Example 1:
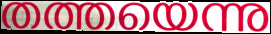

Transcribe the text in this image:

തത്തയെന്നു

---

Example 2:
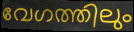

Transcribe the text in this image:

വേഗത്തിലും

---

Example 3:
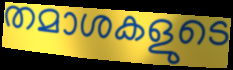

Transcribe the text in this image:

തമാശകളുടെ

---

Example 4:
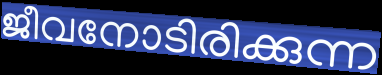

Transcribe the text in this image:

ജീവനോടിരിക്കുന്ന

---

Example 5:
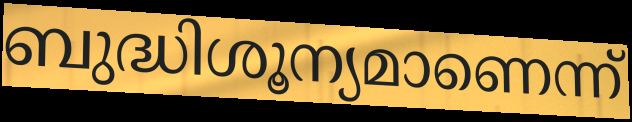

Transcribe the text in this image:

ബുദ്ധിശൂന്യമാണെന്ന്